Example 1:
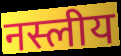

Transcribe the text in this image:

नस्लीय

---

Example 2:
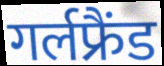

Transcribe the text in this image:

गर्लफ्रैंड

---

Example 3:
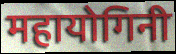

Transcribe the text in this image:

महायोगिनी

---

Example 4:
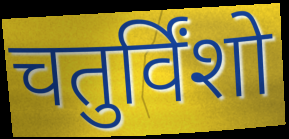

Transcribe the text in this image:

चतुर्विंशो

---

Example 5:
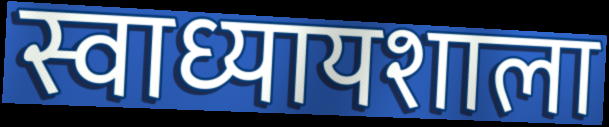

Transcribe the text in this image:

स्वाध्यायशाला